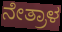
ನೇತ್ರಾಳ